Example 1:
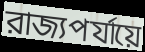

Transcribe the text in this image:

রাজ্যপর্যায়ে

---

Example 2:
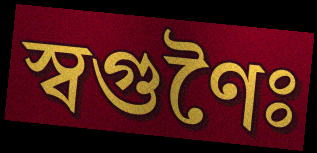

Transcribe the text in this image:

স্বগুণৈঃ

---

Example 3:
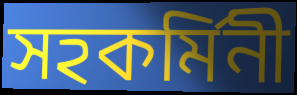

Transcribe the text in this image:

সহকর্মিনী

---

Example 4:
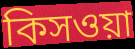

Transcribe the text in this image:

কিসওয়া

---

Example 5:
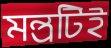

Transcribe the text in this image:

মন্ত্রটিই